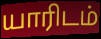
யாரிடம்